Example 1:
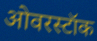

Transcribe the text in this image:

ओवरस्टॉक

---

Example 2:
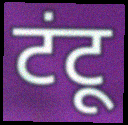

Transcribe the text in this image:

टंटू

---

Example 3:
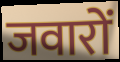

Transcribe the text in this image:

जवारों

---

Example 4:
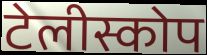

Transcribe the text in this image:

टेलीस्‍कोप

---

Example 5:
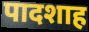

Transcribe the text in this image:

पादशाह